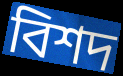
বিশদ